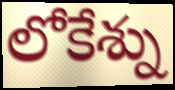
లోకేశ్ను